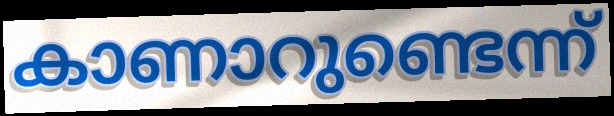
കാണാറുണ്ടെന്ന്